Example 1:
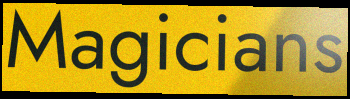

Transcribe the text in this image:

Magicians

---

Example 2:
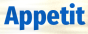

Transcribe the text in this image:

Appetit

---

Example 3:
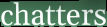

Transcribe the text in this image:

chatters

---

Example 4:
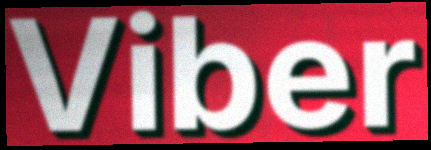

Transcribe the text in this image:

Viber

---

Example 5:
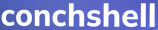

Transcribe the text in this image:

conchshell